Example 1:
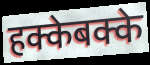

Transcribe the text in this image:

हक्केबक्के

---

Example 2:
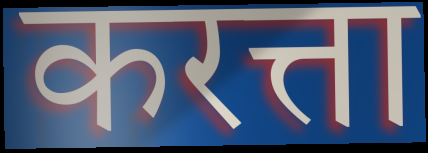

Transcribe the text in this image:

करत्ता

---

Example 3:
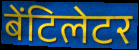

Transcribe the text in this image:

बेंटिलेटर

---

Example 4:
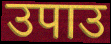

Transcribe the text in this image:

उपाउ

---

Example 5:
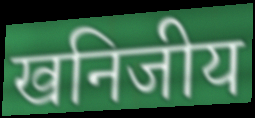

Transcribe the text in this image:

खनिजीय